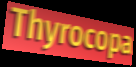
Thyrocopa